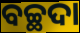
ବଚ୍ଛଦା